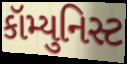
કૉમ્યુનિસ્ટ